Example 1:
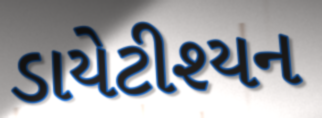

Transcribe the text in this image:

ડાયેટીશ્યન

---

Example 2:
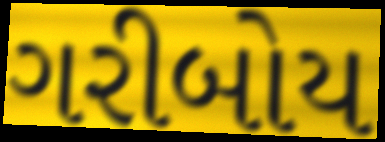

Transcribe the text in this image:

ગરીબોય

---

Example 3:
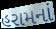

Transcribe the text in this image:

હરામનાં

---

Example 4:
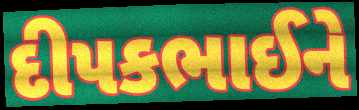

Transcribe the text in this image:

દીપકભાઈને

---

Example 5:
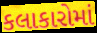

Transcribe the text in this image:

કલાકારોમાં